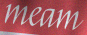
meam